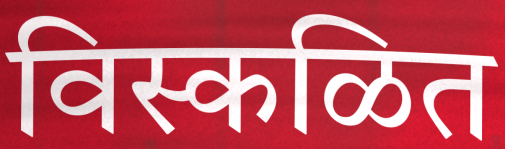
विस्कळित